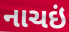
નાચઇં